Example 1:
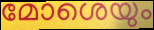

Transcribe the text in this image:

മോശെയും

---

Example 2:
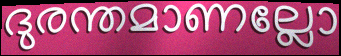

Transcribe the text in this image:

ദുരന്തമാണല്ലോ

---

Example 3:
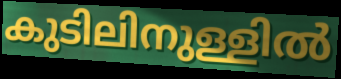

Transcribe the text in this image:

കുടിലിനുള്ളിൽ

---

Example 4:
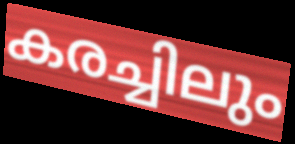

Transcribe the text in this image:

കരച്ചിലും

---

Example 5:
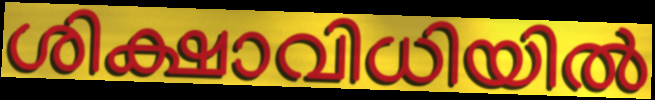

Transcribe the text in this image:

ശിക്ഷാവിധിയിൽ